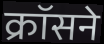
क्रॉसने